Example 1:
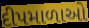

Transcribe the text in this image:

દીપમાળાઓ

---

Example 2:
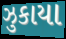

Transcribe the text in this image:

ઝુકાયા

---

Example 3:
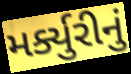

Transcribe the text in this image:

મર્ક્યુરીનું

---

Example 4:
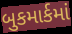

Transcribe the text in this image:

બુકમાર્કમાં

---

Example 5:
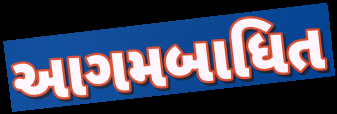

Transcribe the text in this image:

આગમબાધિત